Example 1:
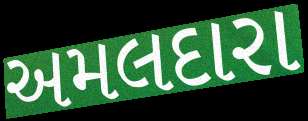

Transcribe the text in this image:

અમલદારા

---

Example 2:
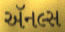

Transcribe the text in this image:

ઍનલ્સ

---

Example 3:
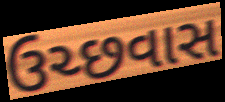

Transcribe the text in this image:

ઉચ્છવાસ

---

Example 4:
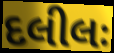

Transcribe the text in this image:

દલીલઃ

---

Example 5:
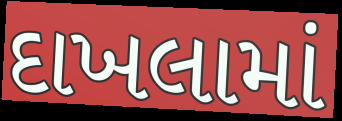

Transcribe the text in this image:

દાખલામાં